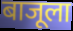
बाजूला